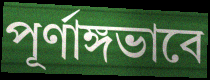
পূর্ণাঙ্গভাবে